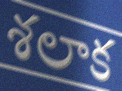
శలాక